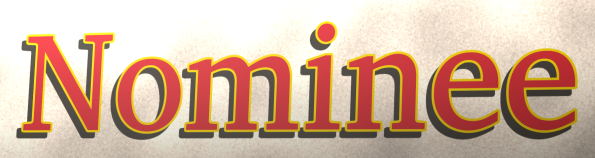
Nominee